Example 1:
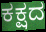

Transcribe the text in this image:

ಕಕ್ಷದ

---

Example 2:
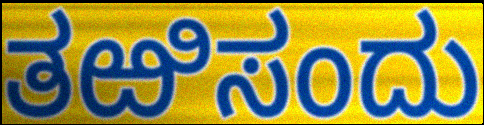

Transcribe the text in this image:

ತಱಿಸಂದು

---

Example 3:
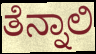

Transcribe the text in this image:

ತೆನ್ನಾಲಿ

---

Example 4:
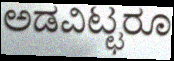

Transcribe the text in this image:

ಅಡವಿಟ್ಟರೂ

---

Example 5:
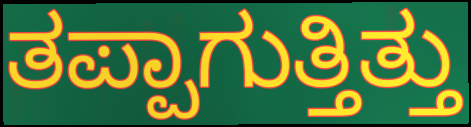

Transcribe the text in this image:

ತಪ್ಪಾಗುತ್ತಿತ್ತು